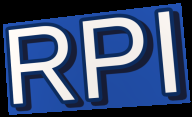
RPI